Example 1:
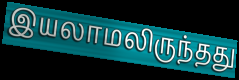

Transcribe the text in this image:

இயலாமலிருந்தது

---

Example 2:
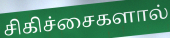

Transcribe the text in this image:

சிகிச்சைகளால்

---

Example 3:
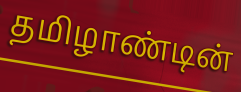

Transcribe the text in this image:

தமிழாண்டின்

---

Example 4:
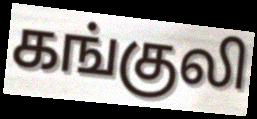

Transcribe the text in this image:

கங்குலி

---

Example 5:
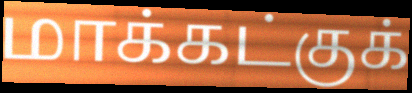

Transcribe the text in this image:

மாக்கட்குக்